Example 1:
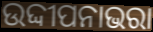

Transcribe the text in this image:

ଉଦ୍ଦୀପନାଭରା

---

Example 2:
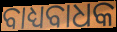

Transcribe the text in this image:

ବାଧ୍ୟବାଧକ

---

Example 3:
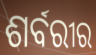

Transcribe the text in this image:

ଶର୍ବରୀର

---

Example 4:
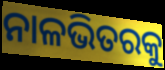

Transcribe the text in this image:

ନାଳଭିତରକୁ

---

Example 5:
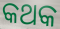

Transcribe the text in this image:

କଥକ